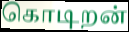
கொடிறன்